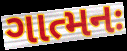
ગાત્મનઃ